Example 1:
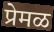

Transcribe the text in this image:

प्रेमळ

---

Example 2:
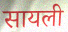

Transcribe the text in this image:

सायली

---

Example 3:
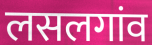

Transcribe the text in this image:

लसलगांव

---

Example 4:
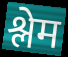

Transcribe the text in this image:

श्लेम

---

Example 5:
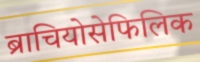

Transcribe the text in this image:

ब्राचियोसेफिलिक